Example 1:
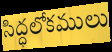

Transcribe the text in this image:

సిద్ధలోకములు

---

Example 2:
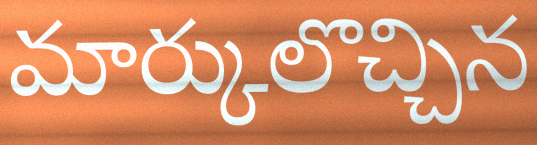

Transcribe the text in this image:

మార్కులొచ్చిన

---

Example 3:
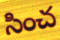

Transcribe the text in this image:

సించ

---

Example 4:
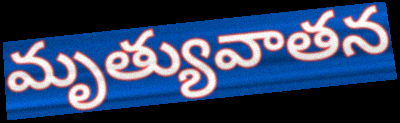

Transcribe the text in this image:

మృత్యువాతన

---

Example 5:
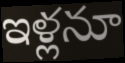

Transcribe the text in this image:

ఇళ్లనూ